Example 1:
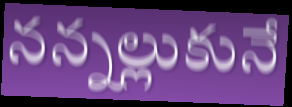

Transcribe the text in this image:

నన్నల్లుకునే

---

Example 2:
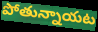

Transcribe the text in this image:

పోతున్నాయట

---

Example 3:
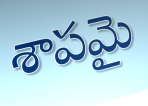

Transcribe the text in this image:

శాపమై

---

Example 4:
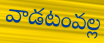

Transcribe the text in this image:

వాడటంవల్ల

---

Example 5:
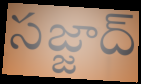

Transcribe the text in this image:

సజ్జాద్